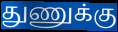
துணுக்கு